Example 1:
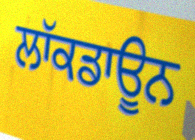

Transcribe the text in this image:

ਲਾੱਕਡਾਊਨ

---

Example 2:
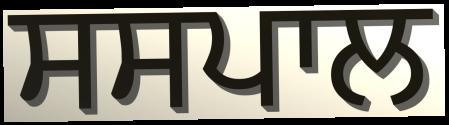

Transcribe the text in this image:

ਸਸਪਾਲ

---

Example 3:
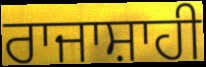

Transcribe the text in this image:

ਰਾਜਾਸ਼ਾਹੀ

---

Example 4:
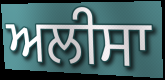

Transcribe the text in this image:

ਅਲੀਸਾ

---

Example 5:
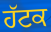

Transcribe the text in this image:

ਹੱਟਕ